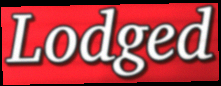
Lodged